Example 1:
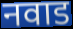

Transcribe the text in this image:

नवाड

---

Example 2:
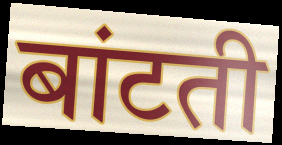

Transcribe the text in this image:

बांटती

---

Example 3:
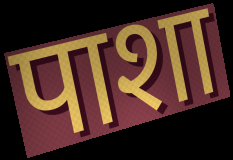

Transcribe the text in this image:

पाशा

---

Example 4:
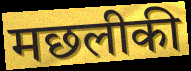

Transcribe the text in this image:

मछलीकी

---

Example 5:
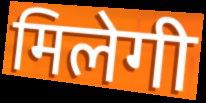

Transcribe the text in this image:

मिलेगी